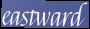
eastward